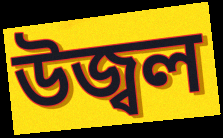
উজ্বল